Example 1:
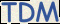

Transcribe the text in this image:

TDM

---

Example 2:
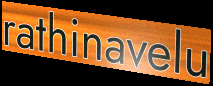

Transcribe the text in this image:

rathinavelu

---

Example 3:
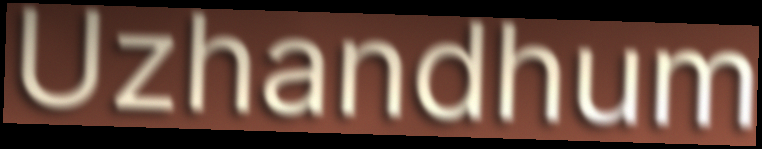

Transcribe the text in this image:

Uzhandhum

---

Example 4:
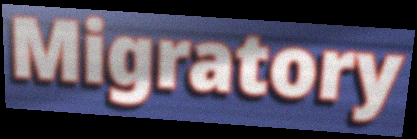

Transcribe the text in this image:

Migratory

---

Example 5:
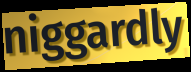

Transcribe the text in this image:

niggardly